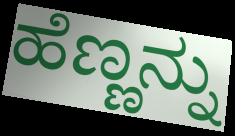
ಹೆಣ್ಣನ್ನು